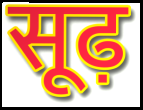
सूढ़